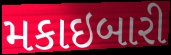
મકાઇબારી